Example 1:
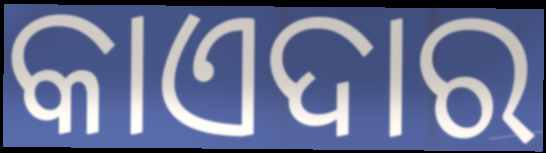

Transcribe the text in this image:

କାଏଦାର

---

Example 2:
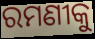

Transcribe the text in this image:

ରମଣୀକୁ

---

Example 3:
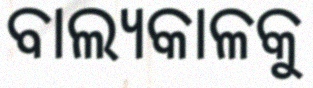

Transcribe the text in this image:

ବାଲ୍ୟକାଳକୁ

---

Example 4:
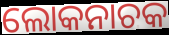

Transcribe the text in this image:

ଲୋକନାଚକ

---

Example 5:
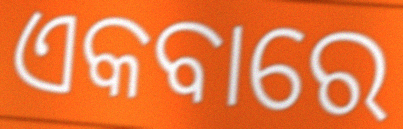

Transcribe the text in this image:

ଏକବାରେ